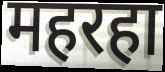
महरहा